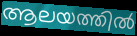
ആലയത്തിൽ